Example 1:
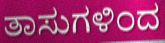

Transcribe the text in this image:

ತಾಸುಗಳಿಂದ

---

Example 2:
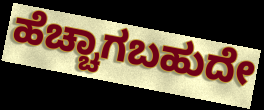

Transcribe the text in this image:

ಹೆಚ್ಚಾಗಬಹುದೇ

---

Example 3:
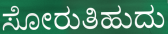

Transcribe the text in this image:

ಸೋರುತಿಹುದು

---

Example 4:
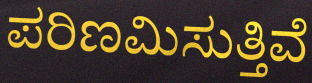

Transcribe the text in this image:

ಪರಿಣಮಿಸುತ್ತಿವೆ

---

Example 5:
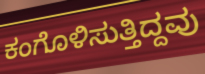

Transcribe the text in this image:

ಕಂಗೊಳಿಸುತ್ತಿದ್ದವು